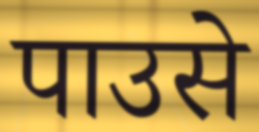
पाउसे